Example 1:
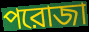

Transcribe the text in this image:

পরোজা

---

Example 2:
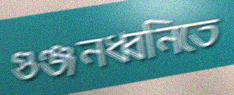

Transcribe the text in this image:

গুঞ্জনধ্বনিতে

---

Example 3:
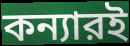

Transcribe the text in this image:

কন্যারই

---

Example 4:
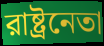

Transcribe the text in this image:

রাষ্ট্রনেতা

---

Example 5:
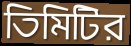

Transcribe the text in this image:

তিমিটির